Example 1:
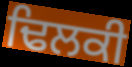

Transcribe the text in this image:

ਢਿਲਕੀ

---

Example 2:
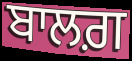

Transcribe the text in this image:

ਬਾਲਗ਼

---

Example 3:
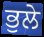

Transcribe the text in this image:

ਭੁਲੇ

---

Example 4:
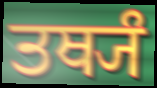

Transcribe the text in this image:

ਤਥ੍ਯੰ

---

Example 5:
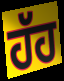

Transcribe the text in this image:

ਹੱਹ